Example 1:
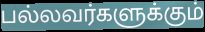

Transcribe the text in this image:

பல்லவர்களுக்கும்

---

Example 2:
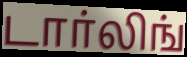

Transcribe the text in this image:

டார்லிங்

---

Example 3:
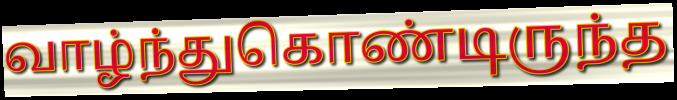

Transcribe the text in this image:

வாழ்ந்துகொண்டிருந்த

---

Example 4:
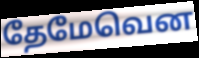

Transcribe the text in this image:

தேமேவென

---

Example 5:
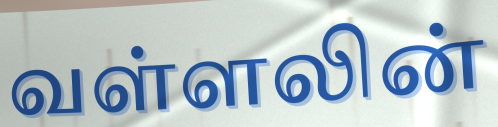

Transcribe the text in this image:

வள்ளலின்